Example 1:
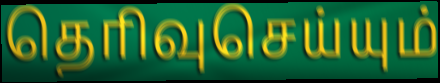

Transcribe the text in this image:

தெரிவுசெய்யும்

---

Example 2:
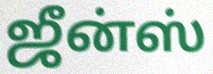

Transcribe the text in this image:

ஜீன்ஸ்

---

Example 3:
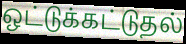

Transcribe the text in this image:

ஒட்டுக்கட்டுதல்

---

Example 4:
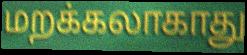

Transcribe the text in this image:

மறக்கலாகாது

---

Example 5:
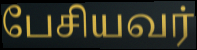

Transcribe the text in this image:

பேசியவர்